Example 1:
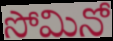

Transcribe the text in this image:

సోమినో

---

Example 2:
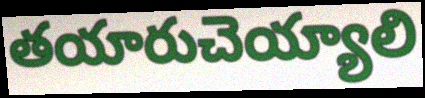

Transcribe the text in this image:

తయారుచెయ్యాలి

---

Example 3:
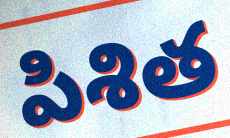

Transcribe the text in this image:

పిశిత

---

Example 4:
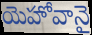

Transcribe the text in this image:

యెహోవానై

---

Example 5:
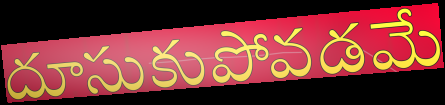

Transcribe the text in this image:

దూసుకుపోవడమే